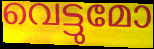
വെട്ടുമോ